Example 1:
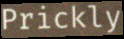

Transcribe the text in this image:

Prickly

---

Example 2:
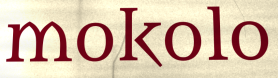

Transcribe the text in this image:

mokolo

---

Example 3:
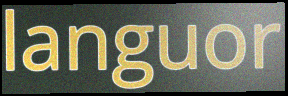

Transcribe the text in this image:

languor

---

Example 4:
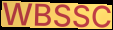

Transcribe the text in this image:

WBSSC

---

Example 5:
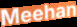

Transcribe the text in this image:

Meehan